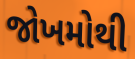
જોખમોથી